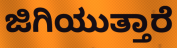
ಜಿಗಿಯುತ್ತಾರೆ